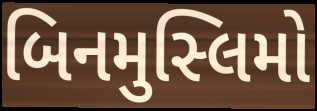
બિનમુસ્લિમો